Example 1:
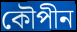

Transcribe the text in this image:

কৌপীন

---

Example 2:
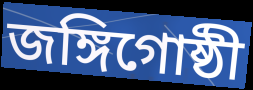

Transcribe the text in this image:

জঙ্গিগোষ্ঠী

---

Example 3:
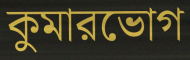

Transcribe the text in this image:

কুমারভোগ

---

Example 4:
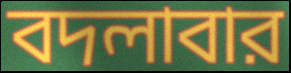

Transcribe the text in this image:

বদলাবার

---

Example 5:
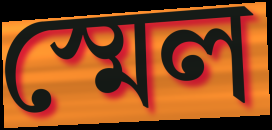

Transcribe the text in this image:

স্মেল